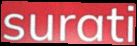
surati